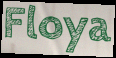
Floya